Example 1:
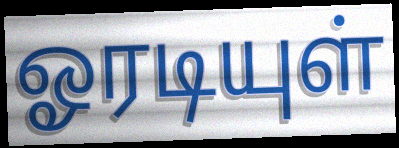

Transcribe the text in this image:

ஓரடியுள்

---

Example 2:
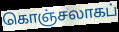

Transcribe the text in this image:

கொஞ்சலாகப்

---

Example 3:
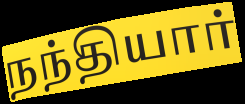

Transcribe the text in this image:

நந்தியார்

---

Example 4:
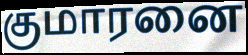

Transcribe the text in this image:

குமாரனை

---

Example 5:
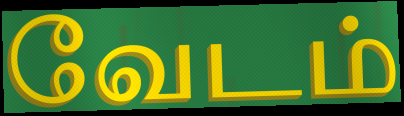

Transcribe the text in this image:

வேடம்